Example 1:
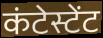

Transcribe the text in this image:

कंटेस्‍टेंट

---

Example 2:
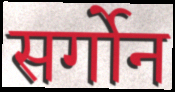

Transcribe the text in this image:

सर्गोन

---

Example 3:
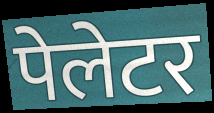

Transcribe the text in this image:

पेलेटर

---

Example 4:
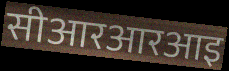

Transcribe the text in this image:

सीआरआरआइ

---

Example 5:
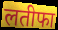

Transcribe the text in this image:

लतीफा